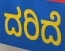
ದರಿದೆ